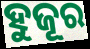
ହୁଜୂର